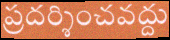
ప్రదర్శించవద్దు